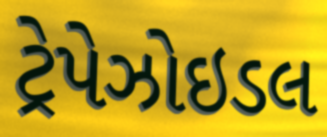
ટ્રેપેઝોઇડલ